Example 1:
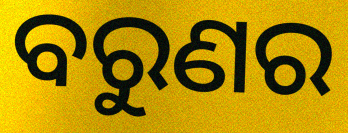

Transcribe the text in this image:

ବରୁଣର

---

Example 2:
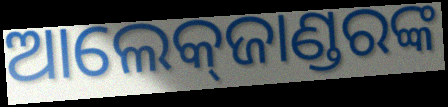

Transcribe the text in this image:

ଆଲେକ୍‍ଜାଣ୍ଡରଙ୍କ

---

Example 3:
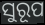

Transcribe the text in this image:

ସୁରୂପ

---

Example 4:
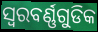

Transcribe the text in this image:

ସ୍ୱରବର୍ଣ୍ଣଗୁଡିକ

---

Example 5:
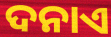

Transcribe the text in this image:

ଦନାଏ